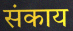
संकाय